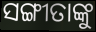
ସଙ୍ଗୀତାଙ୍କୁ